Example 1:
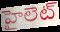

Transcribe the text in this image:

హైలెట్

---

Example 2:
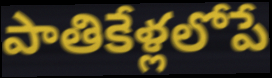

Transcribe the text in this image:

పాతికేళ్లలోపే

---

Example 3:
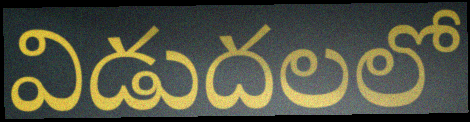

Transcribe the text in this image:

విడుదలలో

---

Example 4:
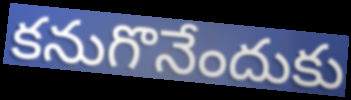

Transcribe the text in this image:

కనుగొనేందుకు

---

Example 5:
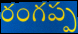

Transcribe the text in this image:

రంగప్ప